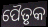
ପୈତୃକ